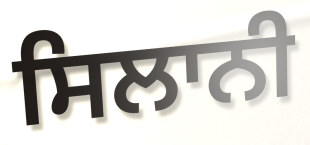
ਸਿਲਾਨੀ